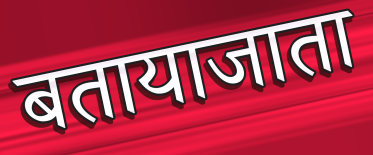
बतायाजाता